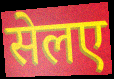
सेलए